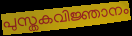
പുസ്തകവിജ്ഞാനം